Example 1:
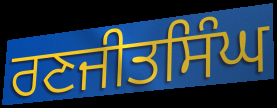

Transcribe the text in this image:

ਰਣਜੀਤਸਿੰਘ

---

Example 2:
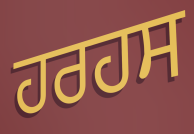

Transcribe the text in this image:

ਹਰਹਸ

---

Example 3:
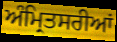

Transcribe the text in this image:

ਅੰਮ੍ਰਿਤਸਰੀਆਂ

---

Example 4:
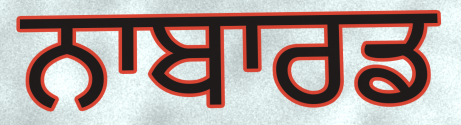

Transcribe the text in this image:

ਨਾਬਾਰਡ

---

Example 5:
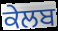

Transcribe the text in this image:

ਕੇਲਬ